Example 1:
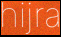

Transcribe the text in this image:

hijra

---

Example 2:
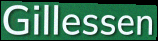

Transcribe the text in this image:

Gillessen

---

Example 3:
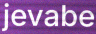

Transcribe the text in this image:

jevabe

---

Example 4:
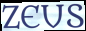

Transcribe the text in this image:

ZEUS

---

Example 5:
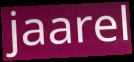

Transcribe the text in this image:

jaarel